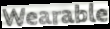
Wearable